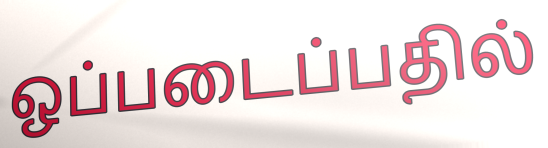
ஒப்படைப்பதில்